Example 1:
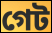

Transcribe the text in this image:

গেট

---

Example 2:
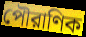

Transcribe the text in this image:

পৌরাণিক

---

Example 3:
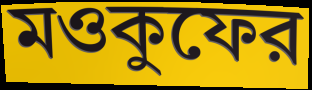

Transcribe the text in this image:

মওকুফের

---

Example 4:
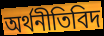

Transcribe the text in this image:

অর্থনীতিবিদ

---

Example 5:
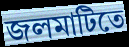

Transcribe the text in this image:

জলমাটিতে